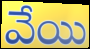
వేయి